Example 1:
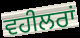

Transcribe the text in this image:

ਵਹੀਲਰਾਂ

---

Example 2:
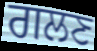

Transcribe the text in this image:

ਗਲਣ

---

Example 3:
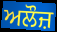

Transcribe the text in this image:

ਅਲੌਜ਼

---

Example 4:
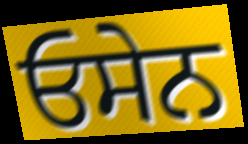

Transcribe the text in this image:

ਓਸੇਨ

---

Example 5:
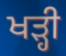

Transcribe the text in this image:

ਖੜ੍ਹੀ